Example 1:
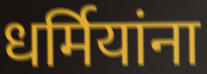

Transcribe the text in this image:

धर्मियांना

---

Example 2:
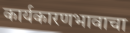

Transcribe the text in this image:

कार्यकारणभावाचा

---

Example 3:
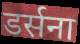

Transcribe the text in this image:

डर्सना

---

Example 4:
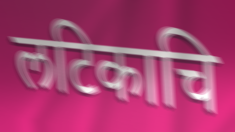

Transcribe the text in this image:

लटिकाचि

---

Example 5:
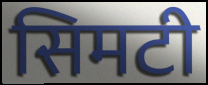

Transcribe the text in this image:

सिमटी